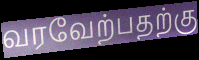
வரவேற்பதற்கு